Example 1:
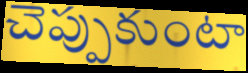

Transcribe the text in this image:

చెప్పుకుంటా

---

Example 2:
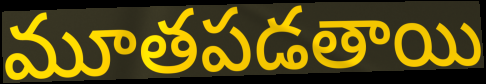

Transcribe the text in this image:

మూతపడతాయి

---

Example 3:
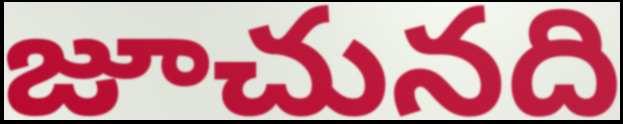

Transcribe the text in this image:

జూచునది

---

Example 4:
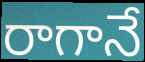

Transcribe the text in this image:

రాగానే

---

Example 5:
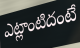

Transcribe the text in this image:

ఎట్లాంటిదంటే